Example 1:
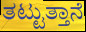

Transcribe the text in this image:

ತಟ್ಟುತ್ತಾನೆ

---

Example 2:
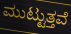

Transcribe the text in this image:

ಮುಟ್ಟುತ್ತವೆ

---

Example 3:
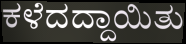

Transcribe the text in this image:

ಕಳೆದದ್ದಾಯಿತು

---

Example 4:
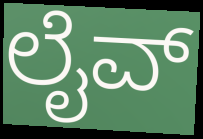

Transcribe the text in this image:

ಲೈವ್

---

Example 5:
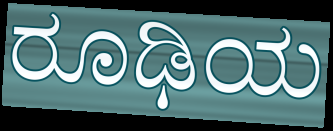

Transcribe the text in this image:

ರೂಢಿಯ